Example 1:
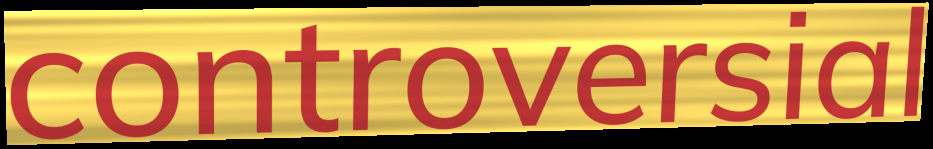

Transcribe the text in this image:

controversial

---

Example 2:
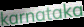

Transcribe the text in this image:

karnataka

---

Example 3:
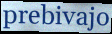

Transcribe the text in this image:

prebivajo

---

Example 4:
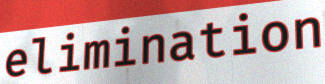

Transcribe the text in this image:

elimination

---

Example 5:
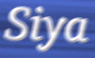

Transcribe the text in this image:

Siya